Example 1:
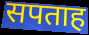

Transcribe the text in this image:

सपताह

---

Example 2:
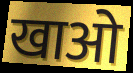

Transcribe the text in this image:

खाओ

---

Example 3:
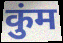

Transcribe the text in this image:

कुंम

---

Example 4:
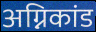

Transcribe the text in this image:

अग्निकांड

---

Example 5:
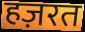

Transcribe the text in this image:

हज़रत